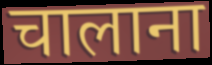
चालाना